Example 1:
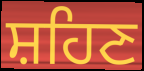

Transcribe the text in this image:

ਸ਼ਹਿਣ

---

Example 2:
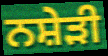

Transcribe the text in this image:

ਨਸ਼ੇੜੀ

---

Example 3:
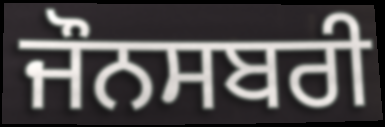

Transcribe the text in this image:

ਜੌਨਸਬਰੀ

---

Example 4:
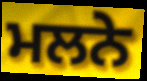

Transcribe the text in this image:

ਮਲਨੇ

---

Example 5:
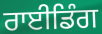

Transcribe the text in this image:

ਰਾਈਡਿੰਗ